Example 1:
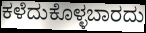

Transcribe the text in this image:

ಕಳೆದುಕೊಳ್ಳಬಾರದು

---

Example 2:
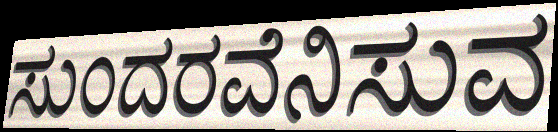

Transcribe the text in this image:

ಸುಂದರವೆನಿಸುವ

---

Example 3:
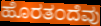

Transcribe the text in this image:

ಹೊರತಂದೆವು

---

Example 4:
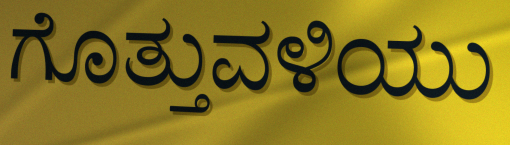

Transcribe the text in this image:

ಗೊತ್ತುವಳಿಯು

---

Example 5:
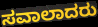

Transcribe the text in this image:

ಸವಾಲಾದರು